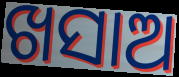
ଖସାଅ